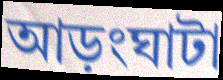
আড়ংঘাটা